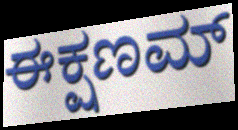
ಈಕ್ಷಣಮ್